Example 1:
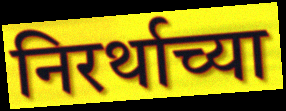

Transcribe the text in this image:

निरर्थाच्या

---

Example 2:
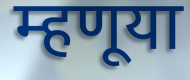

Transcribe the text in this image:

म्हणूया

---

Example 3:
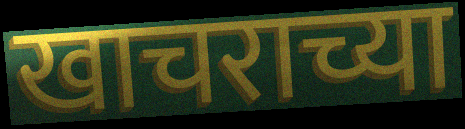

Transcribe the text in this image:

खाचराच्या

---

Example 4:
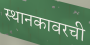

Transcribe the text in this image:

स्थानकावरची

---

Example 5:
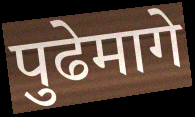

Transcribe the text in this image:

पुढेमागे